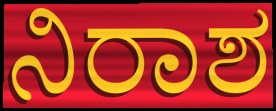
ನಿರಾಶ